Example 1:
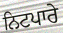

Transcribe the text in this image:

ਨਿਟਪਾਰੇ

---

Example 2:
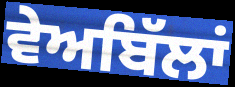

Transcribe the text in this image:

ਵੇਅਬਿੱਲਾਂ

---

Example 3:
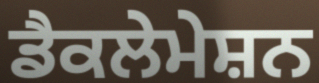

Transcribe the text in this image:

ਡੈਕਲੇਮੇਸ਼ਨ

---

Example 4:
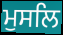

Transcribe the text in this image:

ਮੁਸਲਿ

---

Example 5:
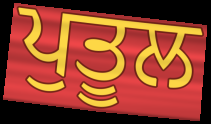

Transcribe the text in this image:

ਪੁਤੂਲ